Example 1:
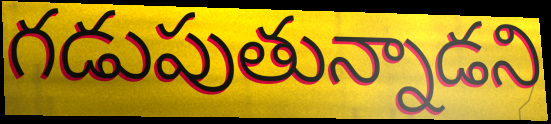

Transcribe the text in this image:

గడుపుతున్నాడని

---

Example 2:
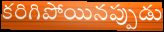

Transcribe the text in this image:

కరిగిపోయినప్పుడు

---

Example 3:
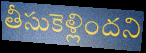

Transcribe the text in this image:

తీసుకెళ్లిందని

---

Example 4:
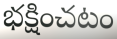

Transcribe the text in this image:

భక్షించటం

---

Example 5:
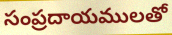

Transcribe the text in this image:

సంప్రదాయములతో